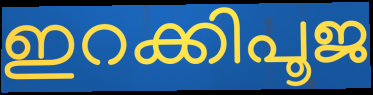
ഇറക്കിപൂജ